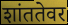
शांततेवर